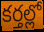
కర్తల్లో